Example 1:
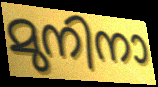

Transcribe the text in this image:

മുനിനാ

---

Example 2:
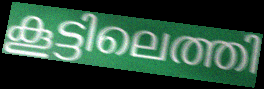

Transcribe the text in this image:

കൂട്ടിലെത്തി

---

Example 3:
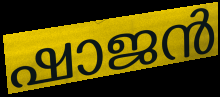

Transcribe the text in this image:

ഷാജൻ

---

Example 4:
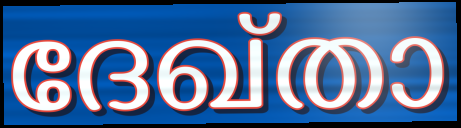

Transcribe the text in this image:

ദേഖ്താ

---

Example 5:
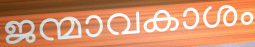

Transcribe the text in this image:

ജന്മാവകാശം